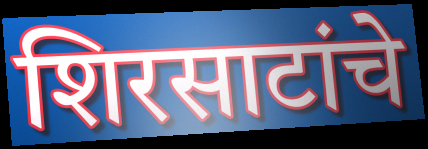
शिरसाटांचे